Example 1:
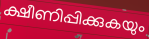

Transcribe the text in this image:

ക്ഷീണിപ്പിക്കുകയും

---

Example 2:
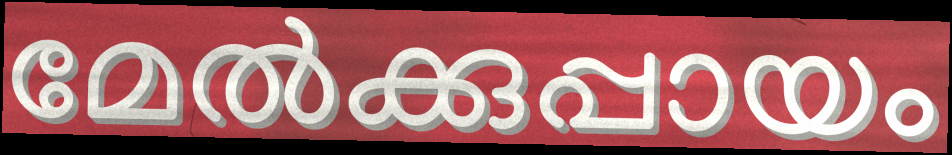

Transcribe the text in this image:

മേൽക്കുപ്പായം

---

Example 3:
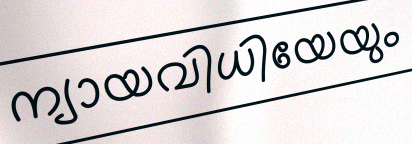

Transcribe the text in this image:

ന്യായവിധിയേയും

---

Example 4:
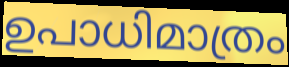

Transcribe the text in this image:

ഉപാധിമാത്രം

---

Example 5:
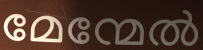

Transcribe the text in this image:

മേന്മേൽ